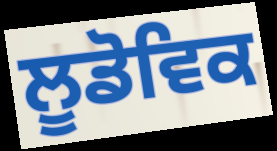
ਲੂਡੋਵਿਕ